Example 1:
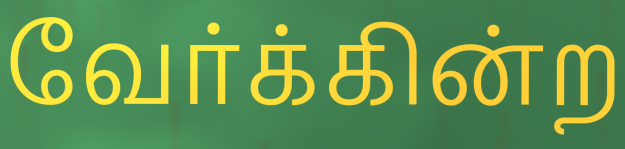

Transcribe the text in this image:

வேர்க்கின்ற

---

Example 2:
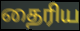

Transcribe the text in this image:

தைரிய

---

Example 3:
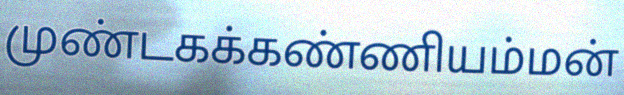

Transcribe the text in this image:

முண்டகக்கண்ணியம்மன்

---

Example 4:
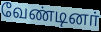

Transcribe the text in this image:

வேண்டினர்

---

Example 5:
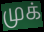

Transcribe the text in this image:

முக்